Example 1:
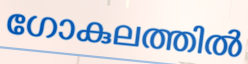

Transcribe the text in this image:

ഗോകുലത്തിൽ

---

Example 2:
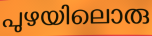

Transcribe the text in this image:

പുഴയിലൊരു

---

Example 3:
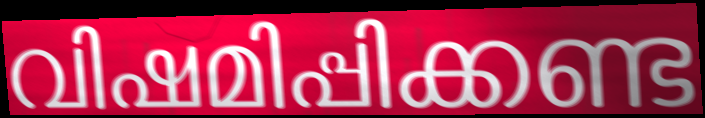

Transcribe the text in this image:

വിഷമിപ്പിക്കണ്ട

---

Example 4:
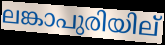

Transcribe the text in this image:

ലങ്കാപുരിയില്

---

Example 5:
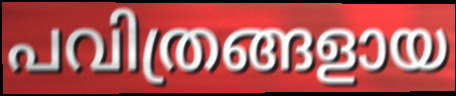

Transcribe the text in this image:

പവിത്രങ്ങളായ